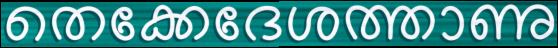
തെക്കേദേശത്താണു